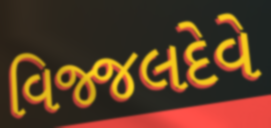
વિજ્જલદેવે